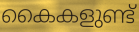
കൈകളുണ്ട്